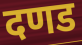
दणड